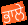
ਭਾਲੇ